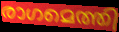
രാഗമെത്തി